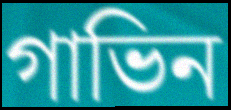
গাভিন